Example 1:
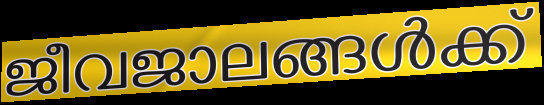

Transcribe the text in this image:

ജീവജാലങ്ങൾക്ക്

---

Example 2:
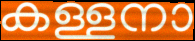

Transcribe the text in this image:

കള്ളനാ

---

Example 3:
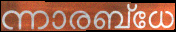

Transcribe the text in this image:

ന്നാരബ്ധേ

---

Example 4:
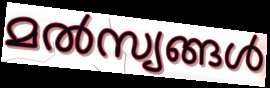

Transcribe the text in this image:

മൽസ്യങ്ങൾ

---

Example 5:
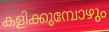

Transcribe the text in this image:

കളിക്കുമ്പോഴും